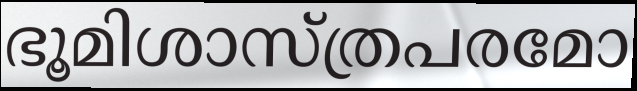
ഭൂമിശാസ്ത്രപരമോ